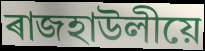
ৰাজহাউলীয়ে